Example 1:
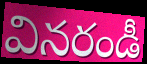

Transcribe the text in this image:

వినరండీ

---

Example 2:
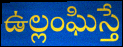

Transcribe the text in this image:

ఉల్లంఘిస్తే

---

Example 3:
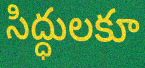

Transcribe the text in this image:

సిద్ధులకూ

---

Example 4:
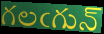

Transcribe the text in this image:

గలఁగున్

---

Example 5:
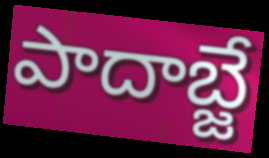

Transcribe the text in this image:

పాదాబ్జే